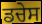
ਡਚੇਸ